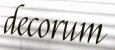
decorum